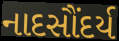
નાદસૌંદર્ય